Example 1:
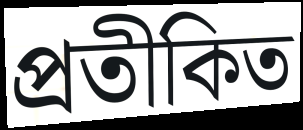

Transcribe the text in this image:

প্ৰতীকিত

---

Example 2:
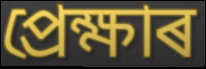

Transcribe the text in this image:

প্ৰেক্ষাৰ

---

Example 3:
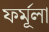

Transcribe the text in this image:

ফৰ্মূলা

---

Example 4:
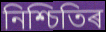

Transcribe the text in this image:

নিশ্চিতিৰ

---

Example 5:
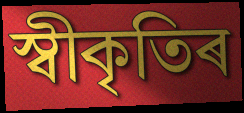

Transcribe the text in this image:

স্বীকৃতিৰ